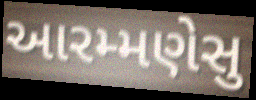
આરમ્મણેસુ